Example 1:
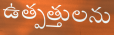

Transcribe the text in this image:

ఉత్పత్తులను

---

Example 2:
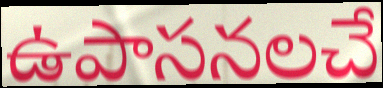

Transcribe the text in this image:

ఉపాసనలచే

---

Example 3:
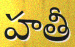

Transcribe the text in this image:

హతీ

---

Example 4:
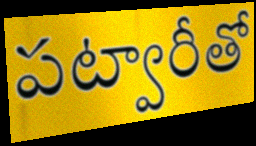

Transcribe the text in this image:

పట్వారీతో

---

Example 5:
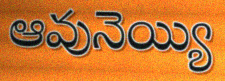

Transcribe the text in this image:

ఆవునెయ్యి